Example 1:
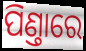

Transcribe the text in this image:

ପିଣ୍ତାରେ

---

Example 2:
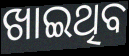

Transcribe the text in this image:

ଖାଇଥିବ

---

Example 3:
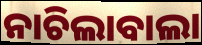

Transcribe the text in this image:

ନାଚିଲାବାଲା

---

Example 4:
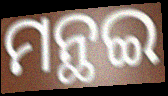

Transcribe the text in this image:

ମନ୍ଥଇ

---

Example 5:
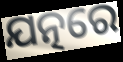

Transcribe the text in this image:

ଯତ୍ନରେ